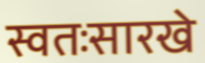
स्वतःसारखे